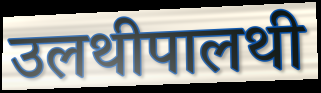
उलथीपालथी